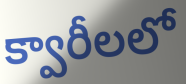
క్వారీలలో